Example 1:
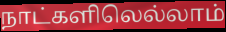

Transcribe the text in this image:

நாட்களிலெல்லாம்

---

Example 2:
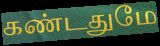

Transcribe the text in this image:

கண்டதுமே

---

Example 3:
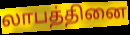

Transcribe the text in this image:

லாபத்தினை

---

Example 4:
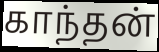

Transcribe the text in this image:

காந்தன்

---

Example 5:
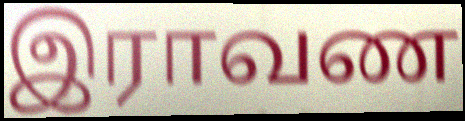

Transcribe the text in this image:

இராவண